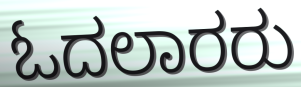
ಓದಲಾರರು